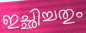
ഇച്ഛിച്ചതും